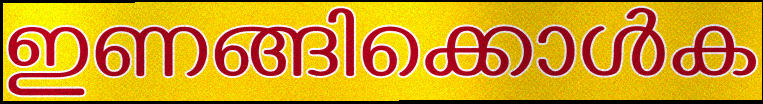
ഇണങ്ങിക്കൊൾക